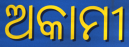
ଅକାମୀ